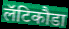
लॅटिकौडा